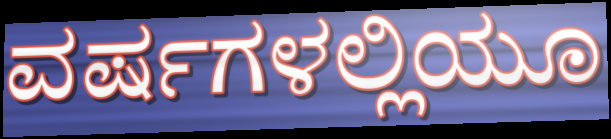
ವರ್ಷಗಳಲ್ಲಿಯೂ